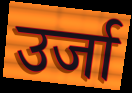
उर्जा